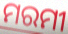
ମରମୀ